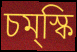
চম্‌স্কি